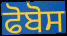
ਫੋਬੋਸ